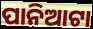
ପାନିଆଟା